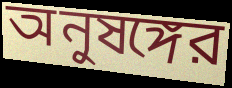
অনুষঙ্গের